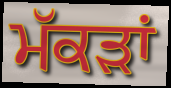
ਮੱਕੜਾਂ